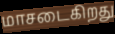
மாசடைகிறது